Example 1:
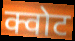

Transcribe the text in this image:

क्वोट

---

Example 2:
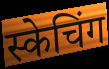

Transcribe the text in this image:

स्केचिंग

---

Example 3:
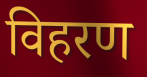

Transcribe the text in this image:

विहरण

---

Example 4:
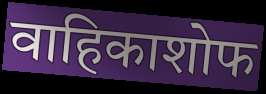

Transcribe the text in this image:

वाहिकाशोफ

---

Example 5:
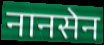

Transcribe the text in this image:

नानसेन